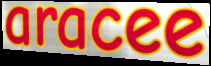
aracee